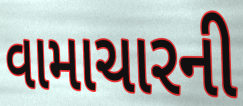
વામાચારની